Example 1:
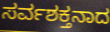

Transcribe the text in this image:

ಸರ್ವಶಕ್ತನಾದ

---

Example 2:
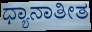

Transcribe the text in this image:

ಧ್ಯಾನಾತೀತ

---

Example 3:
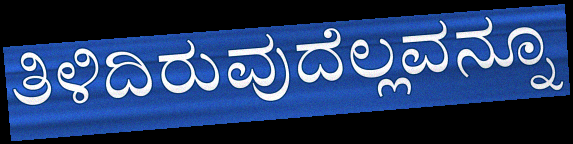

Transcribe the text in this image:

ತಿಳಿದಿರುವುದೆಲ್ಲವನ್ನೂ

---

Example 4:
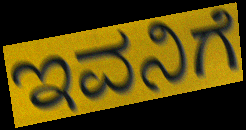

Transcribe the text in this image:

ಇವನಿಗೆ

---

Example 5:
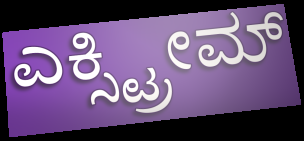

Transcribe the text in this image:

ಎಕ್ಸ್ಟ್ರೀಮ್